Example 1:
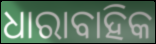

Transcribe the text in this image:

ଧାରାବାହିକ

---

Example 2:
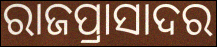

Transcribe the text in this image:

ରାଜପ୍ରାସାଦର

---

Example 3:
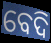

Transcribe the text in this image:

ବେଦି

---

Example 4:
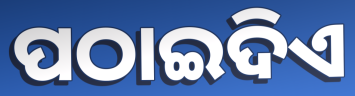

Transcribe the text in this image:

ପଠାଇଦିଏ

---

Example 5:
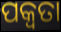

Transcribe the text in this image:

ପକ୍ୱତା